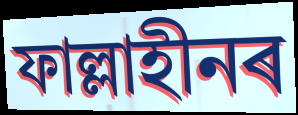
ফাল্লাহীনৰ